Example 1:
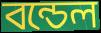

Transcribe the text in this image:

বন্ডেল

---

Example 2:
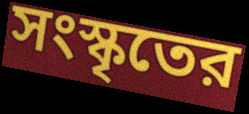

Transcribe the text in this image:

সংস্কৃতের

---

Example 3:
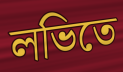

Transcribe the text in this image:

লভিতে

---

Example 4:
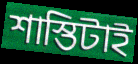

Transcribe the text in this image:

শাস্তিটাই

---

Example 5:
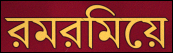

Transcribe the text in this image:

রমরমিয়ে